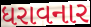
ધરાવનાર